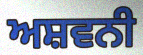
ਅਸ਼ਵਨੀ